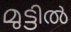
മുട്ടിൽ